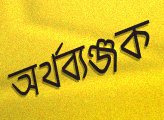
অৰ্থব্যঞ্জক